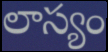
లాస్యం